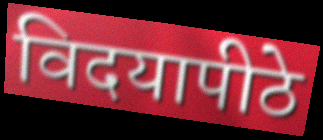
विदयापीठे